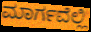
ಮಾರ್ಗವೆಲ್ಲಿ